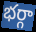
భర్గా